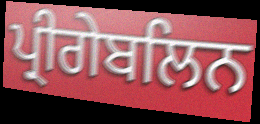
ਪ੍ਰੀਗੇਬਲਿਨ